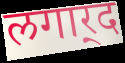
लगार्द